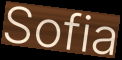
Sofia